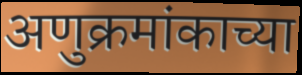
अणुक्रमांकाच्या